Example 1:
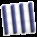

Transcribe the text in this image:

llll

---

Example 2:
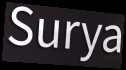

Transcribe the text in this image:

Surya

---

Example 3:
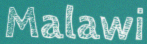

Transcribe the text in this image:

Malawi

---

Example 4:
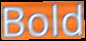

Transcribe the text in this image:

Bold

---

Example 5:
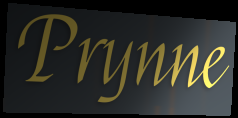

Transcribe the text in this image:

Prynne